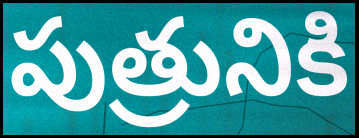
పుత్రునికి